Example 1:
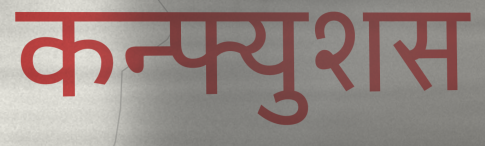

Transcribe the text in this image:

कन्फ्युशस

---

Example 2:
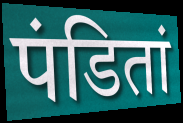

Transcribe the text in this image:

पंडितां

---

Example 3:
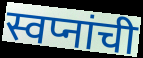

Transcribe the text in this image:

स्वप्नांची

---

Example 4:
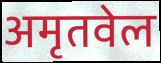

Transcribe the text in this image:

अमृतवेल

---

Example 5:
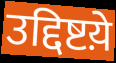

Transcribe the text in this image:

उद्दिष्टय़े